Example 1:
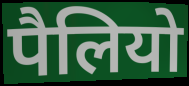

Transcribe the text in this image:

पैलियो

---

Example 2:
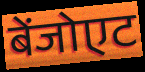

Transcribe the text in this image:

बेंजोएट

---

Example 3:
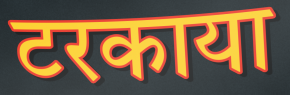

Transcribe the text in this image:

टरकाया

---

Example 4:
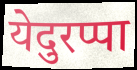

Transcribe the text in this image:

येदुरप्पा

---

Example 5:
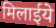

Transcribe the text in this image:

मिलाईये